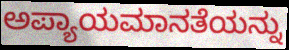
ಅಪ್ಯಾಯಮಾನತೆಯನ್ನು